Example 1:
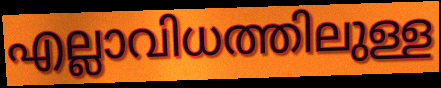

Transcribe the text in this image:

എല്ലാവിധത്തിലുള്ള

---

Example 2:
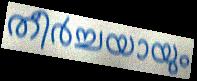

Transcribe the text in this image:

തീർച്ചയായും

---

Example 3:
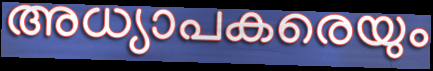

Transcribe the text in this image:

അധ്യാപകരെയും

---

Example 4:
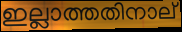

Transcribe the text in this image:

ഇല്ലാത്തതിനാല്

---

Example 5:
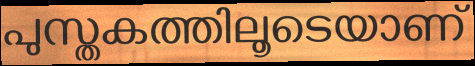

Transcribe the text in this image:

പുസ്തകത്തിലൂടെയാണ്